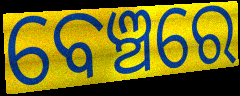
ବେଞ୍ଚରେ